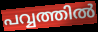
പവ്വത്തിൽ